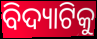
ବିଦ୍ୟାଟିକୁ